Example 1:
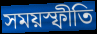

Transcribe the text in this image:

সময়স্ফীতি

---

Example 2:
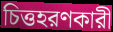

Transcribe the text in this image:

চিত্তহরণকারী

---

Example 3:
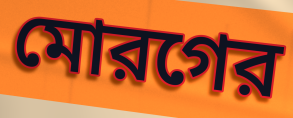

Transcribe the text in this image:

মোরগের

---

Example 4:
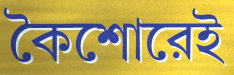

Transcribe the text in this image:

কৈশোরেই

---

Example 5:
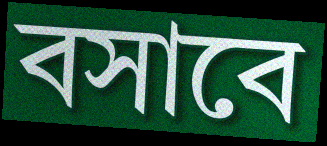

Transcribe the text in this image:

বসাবে